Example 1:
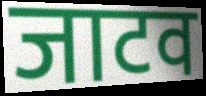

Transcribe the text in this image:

जाटव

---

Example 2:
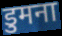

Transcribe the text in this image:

डुमना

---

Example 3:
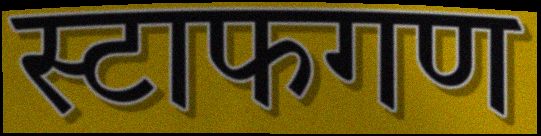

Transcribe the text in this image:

स्टाफगण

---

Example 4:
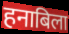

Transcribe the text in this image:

हनाबिला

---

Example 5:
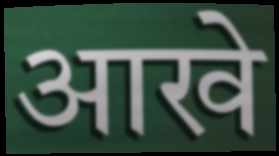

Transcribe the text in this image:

आखे